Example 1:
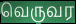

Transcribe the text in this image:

வெருவர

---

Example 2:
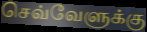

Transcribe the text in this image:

செவ்வேளுக்கு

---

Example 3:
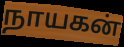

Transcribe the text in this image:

நாயகன்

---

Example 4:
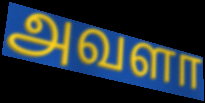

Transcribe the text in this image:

அவளா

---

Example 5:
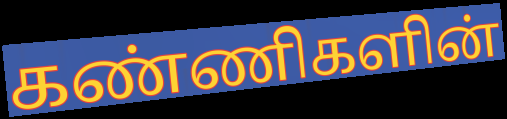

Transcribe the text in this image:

கண்ணிகளின்